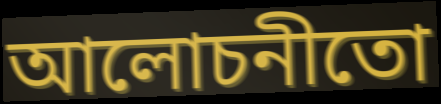
আলোচনীতো